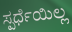
ಸ್ಪರ್ಧೆಯಿಲ್ಲ